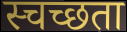
स्चच्छता